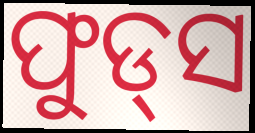
ଫୁଡ୍‌ସ